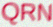
QRN